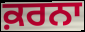
ਕ਼ਰਨਾ